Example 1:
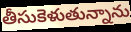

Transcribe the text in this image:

తీసుకెళుతున్నాను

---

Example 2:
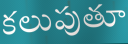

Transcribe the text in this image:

కలుపుతూ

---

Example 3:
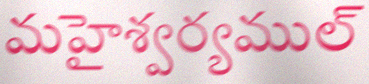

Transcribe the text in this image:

మహైశ్వర్యముల్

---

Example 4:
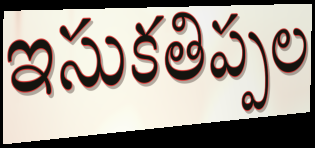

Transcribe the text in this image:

ఇసుకతిప్పల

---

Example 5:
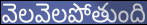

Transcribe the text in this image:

వెలవెలపోతుంది